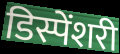
डिस्पेंशरी